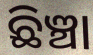
ଛିଞ୍ଚା